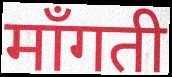
माँगती